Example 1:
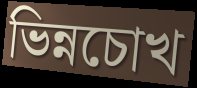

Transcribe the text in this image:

ভিন্নচোখ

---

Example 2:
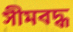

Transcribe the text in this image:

সীমবদ্ধ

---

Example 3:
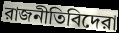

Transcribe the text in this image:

রাজনীতিবিদেরা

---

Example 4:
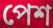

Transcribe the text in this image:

পেশ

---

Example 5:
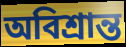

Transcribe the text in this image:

অবিশ্রান্ত